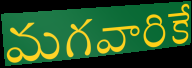
మగవారికే